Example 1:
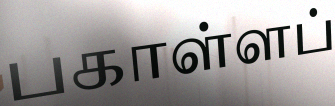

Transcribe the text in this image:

பகாள்ளப்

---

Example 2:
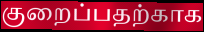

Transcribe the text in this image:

குறைப்பதற்காக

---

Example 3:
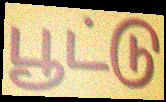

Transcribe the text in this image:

பூட்டு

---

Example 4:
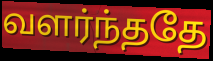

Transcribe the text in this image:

வளர்ந்ததே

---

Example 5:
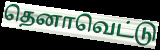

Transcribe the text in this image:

தெனாவெட்டு